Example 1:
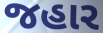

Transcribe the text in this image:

જહાર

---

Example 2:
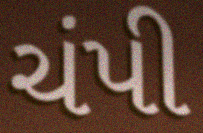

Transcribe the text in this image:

ચંપી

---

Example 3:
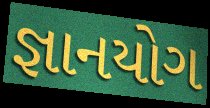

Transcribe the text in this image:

જ્ઞાનયોગ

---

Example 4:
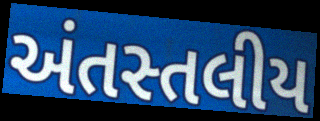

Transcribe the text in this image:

અંતસ્તલીય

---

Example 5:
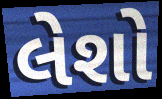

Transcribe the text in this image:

લેશો